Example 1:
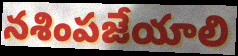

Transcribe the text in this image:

నశింపజేయాలి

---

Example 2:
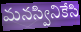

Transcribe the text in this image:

మనస్వినికేసి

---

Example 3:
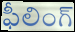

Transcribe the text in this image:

ఫీలింగ్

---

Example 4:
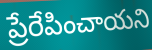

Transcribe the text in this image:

ప్రేరేపించాయని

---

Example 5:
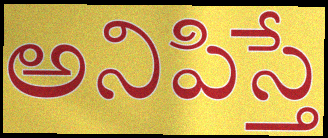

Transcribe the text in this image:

అనిపిస్తే